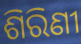
ଶିରିଣୀ